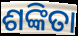
ଶଙ୍କିତା